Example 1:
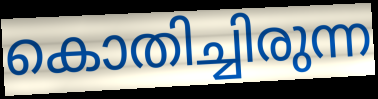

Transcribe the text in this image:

കൊതിച്ചിരുന്ന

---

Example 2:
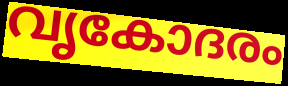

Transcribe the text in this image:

വൃകോദരം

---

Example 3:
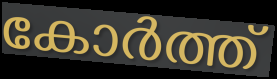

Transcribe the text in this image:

കോർത്ത്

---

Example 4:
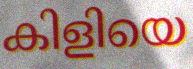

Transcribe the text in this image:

കിളിയെ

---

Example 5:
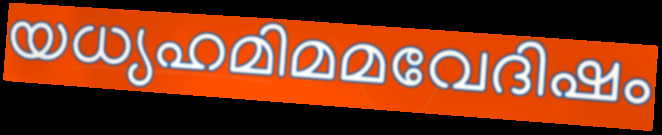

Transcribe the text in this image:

യധ്യഹമിമമവേദിഷം